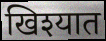
खिश्यात